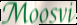
Moosvi